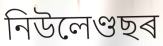
নিউলেণ্ডছৰ